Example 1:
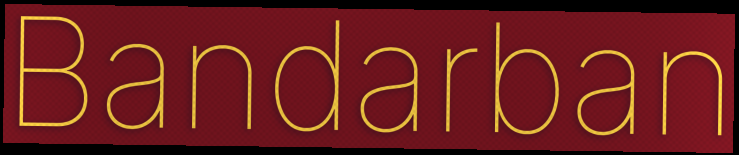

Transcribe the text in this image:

Bandarban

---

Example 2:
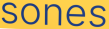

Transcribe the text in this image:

sones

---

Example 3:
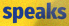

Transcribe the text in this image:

speaks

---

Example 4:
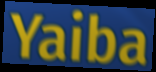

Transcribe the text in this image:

Yaiba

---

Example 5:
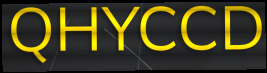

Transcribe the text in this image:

QHYCCD